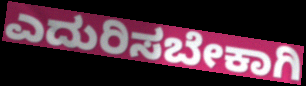
ಎದುರಿಸಬೇಕಾಗಿ